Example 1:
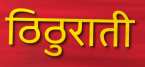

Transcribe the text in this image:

ठिठुराती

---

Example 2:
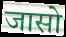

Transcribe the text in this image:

जासो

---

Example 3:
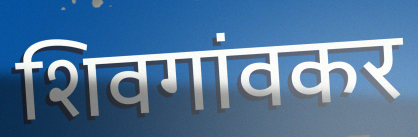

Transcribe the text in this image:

शिवगांवकर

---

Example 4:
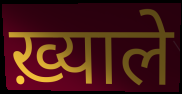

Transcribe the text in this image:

ख़्याले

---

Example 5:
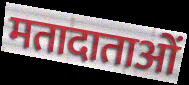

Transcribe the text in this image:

मतादाताओं